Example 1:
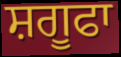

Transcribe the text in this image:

ਸ਼ਗੂਫਾ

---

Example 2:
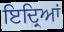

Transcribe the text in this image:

ਇਦ੍ਰਿਆਂ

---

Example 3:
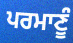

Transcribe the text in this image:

ਪਰਮਾਣੂੰ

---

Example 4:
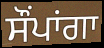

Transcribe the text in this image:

ਸੌਂਪਾਂਗਾ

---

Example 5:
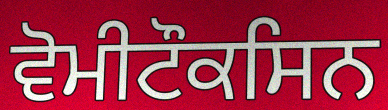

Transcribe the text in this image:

ਵੋਮੀਟੌਕਸਿਨ